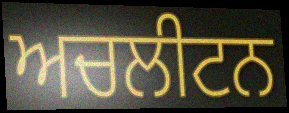
ਅਚਲੀਟਨ